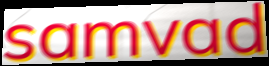
samvad